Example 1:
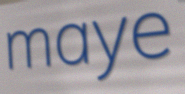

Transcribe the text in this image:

maye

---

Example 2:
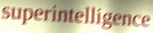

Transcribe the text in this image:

superintelligence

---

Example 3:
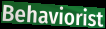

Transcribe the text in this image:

Behaviorist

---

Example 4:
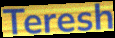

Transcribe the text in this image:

Teresh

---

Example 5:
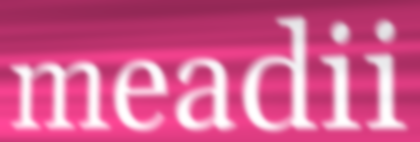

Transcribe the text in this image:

meadii